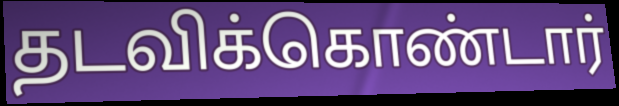
தடவிக்கொண்டார்